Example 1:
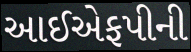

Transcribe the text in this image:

આઈએફપીની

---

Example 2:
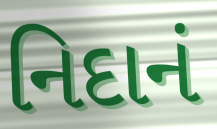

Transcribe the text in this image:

નિદાનં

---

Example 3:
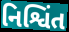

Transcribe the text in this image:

નિશ્વિંત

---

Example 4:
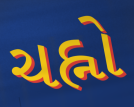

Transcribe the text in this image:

ચહ્નો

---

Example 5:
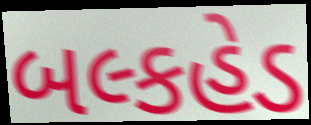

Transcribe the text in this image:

બલ્કહેડ